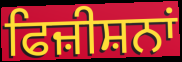
ਫਿਜ਼ੀਸ਼ਨਾਂ